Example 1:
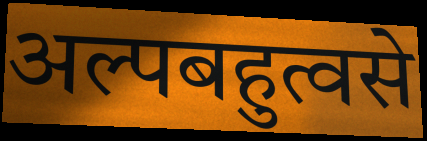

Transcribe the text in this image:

अल्पबहुत्वसे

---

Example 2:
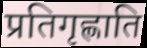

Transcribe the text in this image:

प्रतिगृह्णाति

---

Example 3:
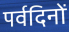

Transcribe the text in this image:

पर्वदिनों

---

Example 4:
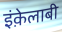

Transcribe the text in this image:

इंक़ेलाबी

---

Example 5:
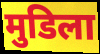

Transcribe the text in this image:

मुडिला